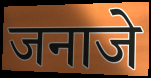
जनाजे